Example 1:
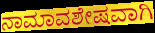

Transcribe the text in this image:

ನಾಮಾವಶೇಷವಾಗಿ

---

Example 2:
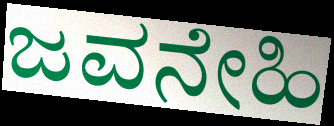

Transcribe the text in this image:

ಜವನೇಹಿ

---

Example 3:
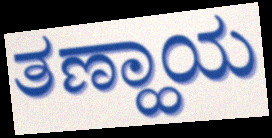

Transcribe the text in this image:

ತಣ್ಹಾಯ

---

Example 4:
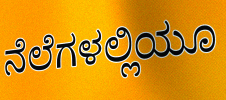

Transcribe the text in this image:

ನೆಲೆಗಳಲ್ಲಿಯೂ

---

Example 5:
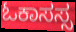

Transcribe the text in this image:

ಓಕಾಸಸ್ಸ